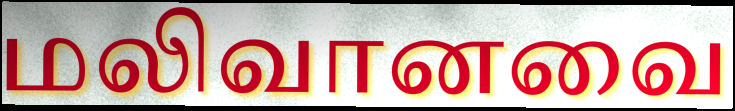
மலிவானவை